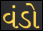
વંડો